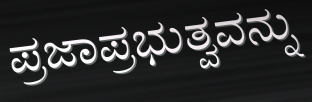
ಪ್ರಜಾಪ್ರಭುತ್ವವನ್ನು